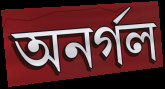
অনর্গল